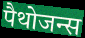
पैथोजन्स